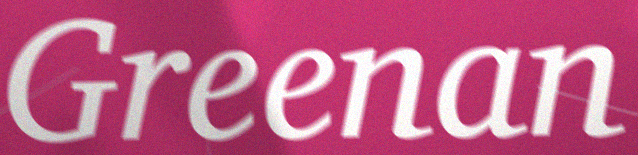
Greenan